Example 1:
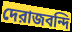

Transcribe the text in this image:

দেরাজবন্দি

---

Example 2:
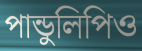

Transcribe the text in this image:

পান্ডুলিপিও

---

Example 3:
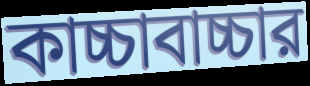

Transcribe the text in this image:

কাচ্চাবাচ্চার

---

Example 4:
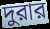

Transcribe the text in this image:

দুরার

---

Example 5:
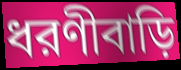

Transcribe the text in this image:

ধরণীবাড়ি